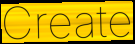
Create